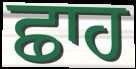
ਛਾਹ